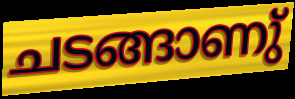
ചടങ്ങാണു്